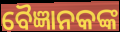
ବୈଜ୍ଞାନକଙ୍କ